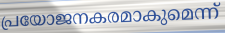
പ്രയോജനകരമാകുമെന്ന്